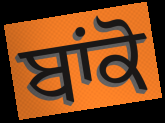
ਬਾਂਕੋ